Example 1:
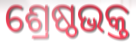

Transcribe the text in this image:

ଶ୍ରେଷ୍ଠଭକ୍ତ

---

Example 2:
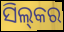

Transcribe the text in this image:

ସିଲ୍‍କର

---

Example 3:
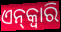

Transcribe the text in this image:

ଏନ୍‌କ୍ୱାରି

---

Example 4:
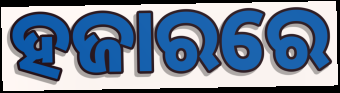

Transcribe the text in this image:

ହଜାରରେ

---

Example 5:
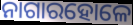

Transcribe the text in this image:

ନାଗାରହୋଳେ